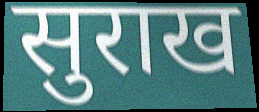
सुराख